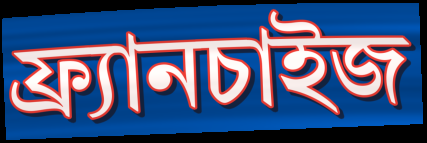
ফ্র্যানচাইজ